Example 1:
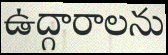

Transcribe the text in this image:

ఉద్గారాలను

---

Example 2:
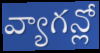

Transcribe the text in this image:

వ్యాగన్లో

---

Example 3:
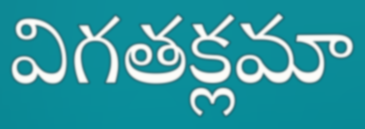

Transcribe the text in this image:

విగతక్లమా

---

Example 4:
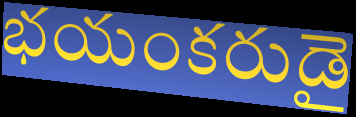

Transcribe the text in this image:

భయంకరుడై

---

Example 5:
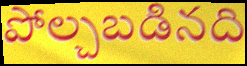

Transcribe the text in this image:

పోల్చబడినది